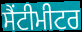
ਸੈਂਟੀਮੀਟਰ